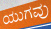
ಯುಗವು